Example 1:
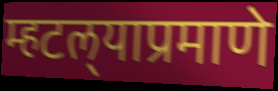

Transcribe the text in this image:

म्हटल्याप्रमाणे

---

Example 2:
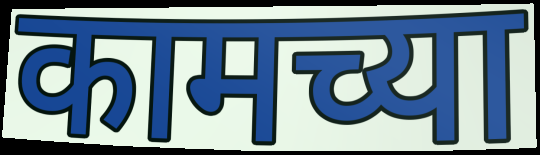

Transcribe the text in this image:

कामच्या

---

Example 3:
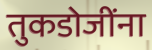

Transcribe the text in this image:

तुकडोजींना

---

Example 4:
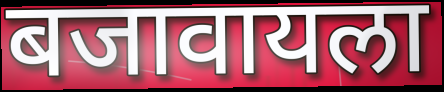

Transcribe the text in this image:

बजावायला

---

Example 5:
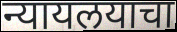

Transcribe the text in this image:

न्यायलयाचा